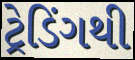
ટ્રેડિંગથી